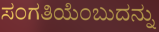
ಸಂಗತಿಯೆಂಬುದನ್ನು